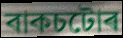
বাকচটোৰ